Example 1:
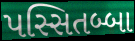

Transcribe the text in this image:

પસ્સિતબ્બા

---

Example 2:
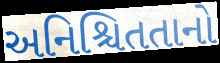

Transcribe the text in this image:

અનિશ્ચિતતાનો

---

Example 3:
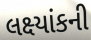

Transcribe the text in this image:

લક્ષ્યાંકની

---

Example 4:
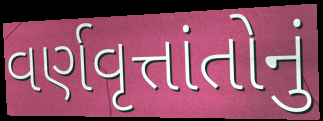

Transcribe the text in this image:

વર્ણવૃત્તાંતોનું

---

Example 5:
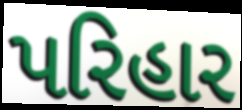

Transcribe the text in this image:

પરિહાર